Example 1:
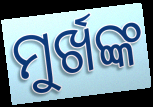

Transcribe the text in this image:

ମୁର୍ଖଙ୍କ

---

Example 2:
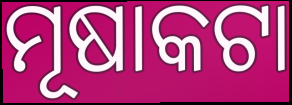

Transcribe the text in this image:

ମୂଷାକଟା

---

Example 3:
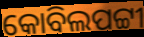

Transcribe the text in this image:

କୋବିଲପଟ୍ଟୀ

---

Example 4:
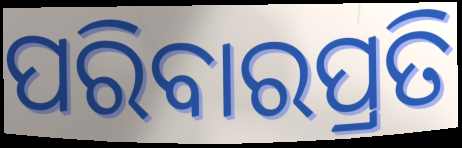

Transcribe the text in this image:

ପରିବାରପ୍ରତି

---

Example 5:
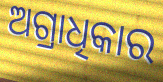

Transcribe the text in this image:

ଅଗ୍ରାଧିକାର